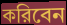
করিবেন